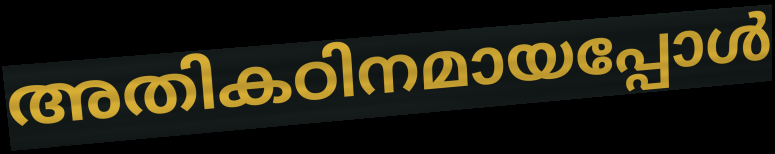
അതികഠിനമായപ്പോൾ